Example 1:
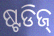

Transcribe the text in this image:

ଷ୍ଟଡିଜ୍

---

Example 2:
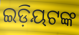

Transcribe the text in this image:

ଇଡ଼ିୟଟଙ୍କ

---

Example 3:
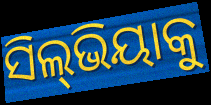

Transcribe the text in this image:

ସିଲ୍‍ଭିୟାକୁ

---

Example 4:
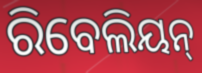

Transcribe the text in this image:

ରିବେଲିୟନ୍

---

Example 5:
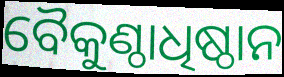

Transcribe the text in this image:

ବୈକୁଣ୍ଠାଧିଷ୍ଠାନ